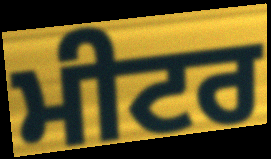
ਮੀਟਰ